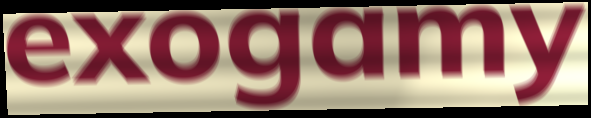
exogamy